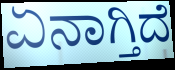
ಏನಾಗ್ತಿದೆ